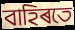
বাহিৰতে